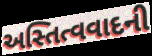
અસ્તિત્વવાદની